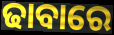
ଢାବାରେ